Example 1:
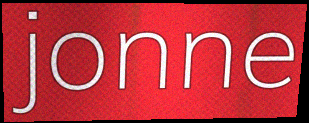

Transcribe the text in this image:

jonne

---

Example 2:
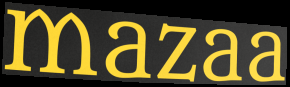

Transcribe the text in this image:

mazaa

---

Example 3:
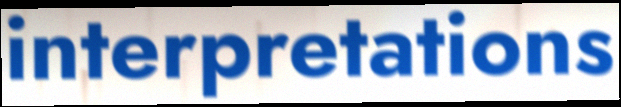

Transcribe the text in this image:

interpretations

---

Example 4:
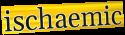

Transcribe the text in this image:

ischaemic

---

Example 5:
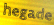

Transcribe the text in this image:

hegade